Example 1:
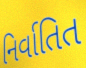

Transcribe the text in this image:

નિર્વાતિત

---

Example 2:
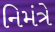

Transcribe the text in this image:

નિમંત્રે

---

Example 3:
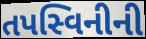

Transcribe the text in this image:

તપસ્વિનીની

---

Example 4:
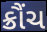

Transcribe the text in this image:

ક્રૌંચ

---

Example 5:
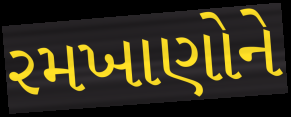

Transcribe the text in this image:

રમખાણોને